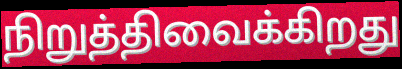
நிறுத்திவைக்கிறது